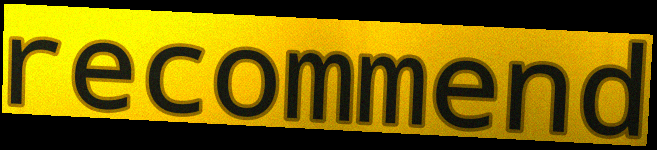
recommend